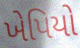
ખેપિયો